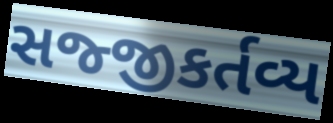
સજ્જીકર્તવ્ય